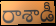
రాశాడీ